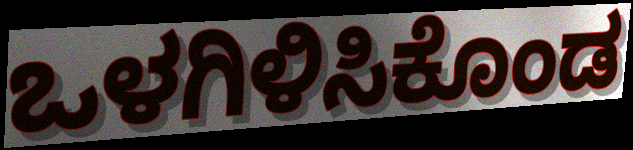
ಒಳಗಿಳಿಸಿಕೊಂಡ